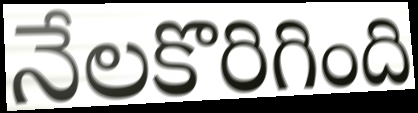
నేలకొరిగింది